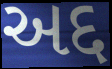
અદ્દ